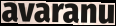
avaranu